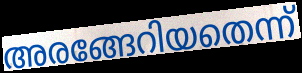
അരങ്ങേറിയതെന്ന്